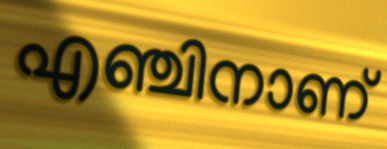
എഞ്ചിനാണ്